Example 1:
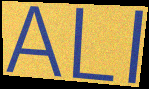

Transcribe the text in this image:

ALI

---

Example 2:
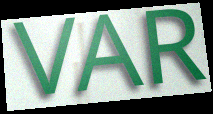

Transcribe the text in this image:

VAR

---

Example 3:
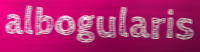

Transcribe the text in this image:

albogularis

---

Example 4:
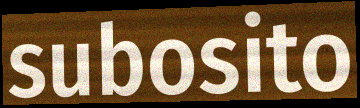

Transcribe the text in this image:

subosito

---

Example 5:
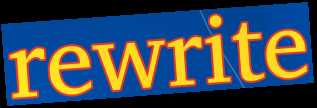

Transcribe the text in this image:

rewrite